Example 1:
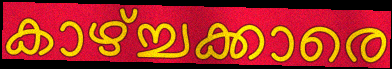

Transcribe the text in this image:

കാഴ്ച്ചക്കാരെ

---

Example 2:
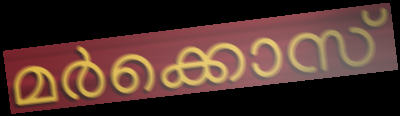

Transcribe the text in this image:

മർക്കൊസ്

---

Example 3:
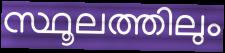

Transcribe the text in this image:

സ്ഥൂലത്തിലും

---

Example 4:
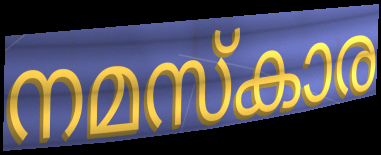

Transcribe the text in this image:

നമസ്കാര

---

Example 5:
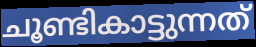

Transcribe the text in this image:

ചൂണ്ടികാട്ടുന്നത്